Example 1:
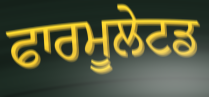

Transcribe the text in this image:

ਫਾਰਮੂਲੇਟਡ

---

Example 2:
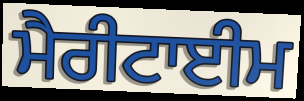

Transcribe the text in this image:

ਮੈਰੀਟਾਈਮ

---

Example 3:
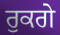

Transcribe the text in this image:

ਰੁਕਗੇ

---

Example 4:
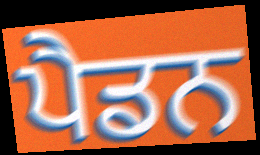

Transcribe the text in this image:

ਪੈਡਨ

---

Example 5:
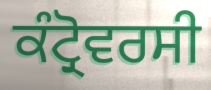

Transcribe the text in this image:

ਕੰਟ੍ਰੋਵਰਸੀ